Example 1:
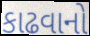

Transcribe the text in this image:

કાઢવાનો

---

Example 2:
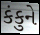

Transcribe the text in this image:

કંકુને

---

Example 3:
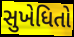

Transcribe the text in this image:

સુખેધિતો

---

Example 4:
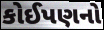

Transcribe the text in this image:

કોઈપણનો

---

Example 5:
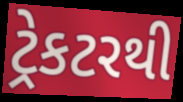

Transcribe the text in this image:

ટ્રેકટરથી